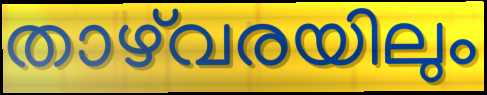
താഴ്‌വരയിലും